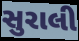
સુરાલી